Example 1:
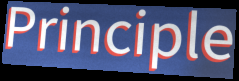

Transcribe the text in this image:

Principle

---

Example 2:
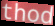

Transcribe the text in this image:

thod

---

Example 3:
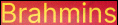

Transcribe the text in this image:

Brahmins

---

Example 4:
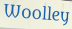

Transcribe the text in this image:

Woolley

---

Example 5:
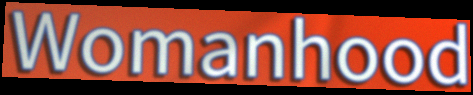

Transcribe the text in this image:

Womanhood